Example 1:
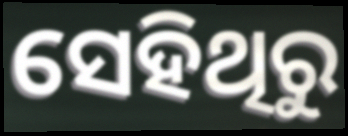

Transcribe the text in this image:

ସେହିଥିରୁ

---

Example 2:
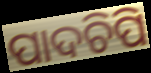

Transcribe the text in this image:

ପାଦଚିପି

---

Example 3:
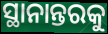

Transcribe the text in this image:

ସ୍ଥାନାନ୍ତରକୁ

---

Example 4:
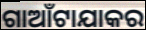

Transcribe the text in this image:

ଗାଆଁଟାଯାକର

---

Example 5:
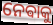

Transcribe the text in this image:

ନେଵାକୁ